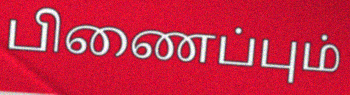
பிணைப்பும்